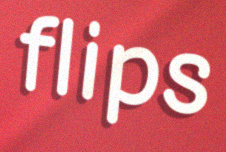
flips